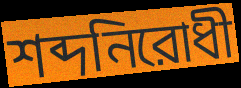
শব্দনিরোধী